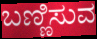
ಬಣ್ಣಿಸುವ